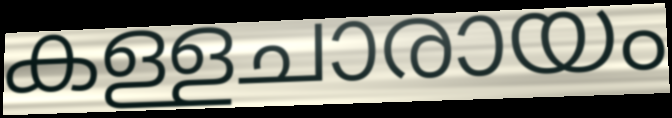
കള്ളചാരായം